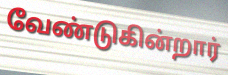
வேண்டுகின்றார்